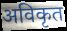
अविकृत